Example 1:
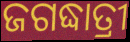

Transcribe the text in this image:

ଜଗଦ୍ଧାତ୍ରୀ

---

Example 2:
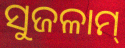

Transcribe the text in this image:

ସୁଜଳାମ୍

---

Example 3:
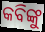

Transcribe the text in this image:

କବିଙ୍କୁ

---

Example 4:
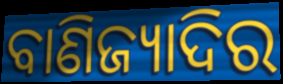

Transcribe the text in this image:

ବାଣିଜ୍ୟାଦିର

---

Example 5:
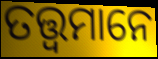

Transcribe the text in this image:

ତତ୍ତ୍ବମାନେ